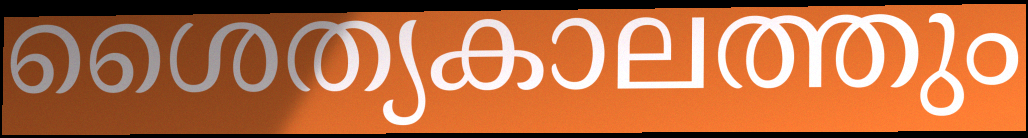
ശൈത്യകാലത്തും